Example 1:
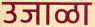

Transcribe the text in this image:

उजाळा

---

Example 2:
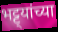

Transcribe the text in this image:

भट्ट्यांच्या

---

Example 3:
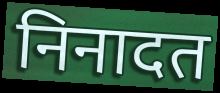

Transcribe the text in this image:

निनादत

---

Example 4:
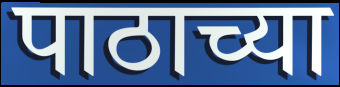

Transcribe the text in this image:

पाठाच्या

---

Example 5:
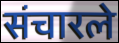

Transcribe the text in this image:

संचारले